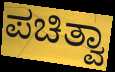
ಪಚಿತ್ವಾ